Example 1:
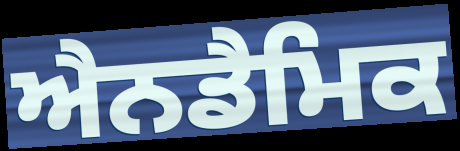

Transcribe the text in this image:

ਐਨਡੈਮਿਕ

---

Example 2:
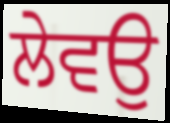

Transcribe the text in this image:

ਲੇਵਉ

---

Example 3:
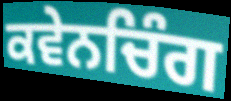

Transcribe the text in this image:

ਕਵੇਨਚਿੰਗ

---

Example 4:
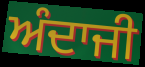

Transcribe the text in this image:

ਅੰਦਾਜੀ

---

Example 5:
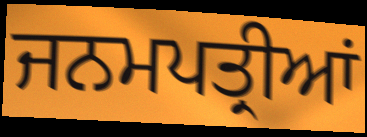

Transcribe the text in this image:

ਜਨਮਪਤ੍ਰੀਆਂ